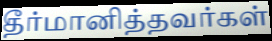
தீர்மானித்தவர்கள்